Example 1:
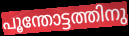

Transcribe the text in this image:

പൂന്തോട്ടത്തിനു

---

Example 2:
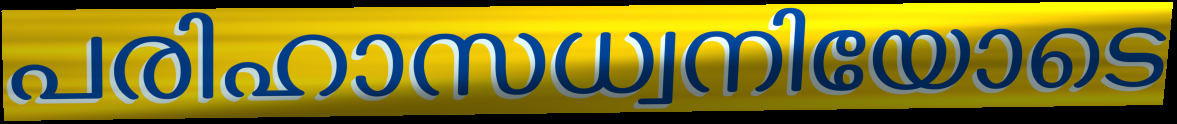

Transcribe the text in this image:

പരിഹാസധ്വനിയോടെ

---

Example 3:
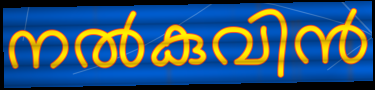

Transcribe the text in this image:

നൽകുവിൻ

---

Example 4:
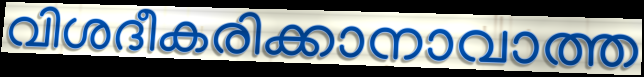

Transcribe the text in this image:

വിശദീകരിക്കാനാവാത്ത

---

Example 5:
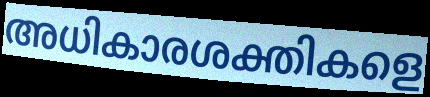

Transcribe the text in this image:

അധികാരശക്തികളെ